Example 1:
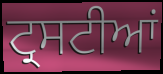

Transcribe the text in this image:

ਟ੍ਰਸਟੀਆਂ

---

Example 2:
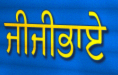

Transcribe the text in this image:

ਜੀਜੀਭਾਏ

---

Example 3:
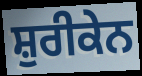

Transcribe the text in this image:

ਸ਼ੁਰੀਕੇਨ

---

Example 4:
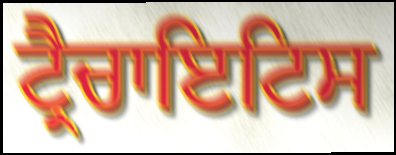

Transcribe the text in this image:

ਟ੍ਰੈਚਾਇਟਿਸ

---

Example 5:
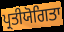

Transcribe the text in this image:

ਪ੍ਰਤੀਯੋਗਿਤਾ